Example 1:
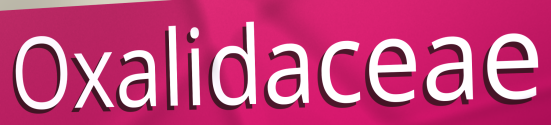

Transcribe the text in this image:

Oxalidaceae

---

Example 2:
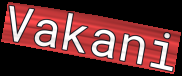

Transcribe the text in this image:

Vakani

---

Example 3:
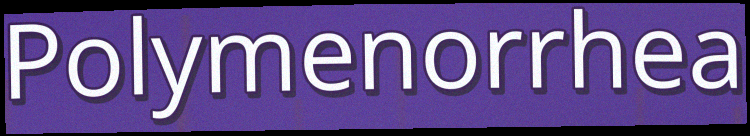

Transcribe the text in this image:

Polymenorrhea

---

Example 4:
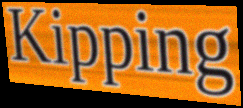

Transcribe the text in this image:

Kipping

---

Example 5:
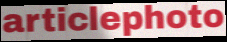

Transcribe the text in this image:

articlephoto